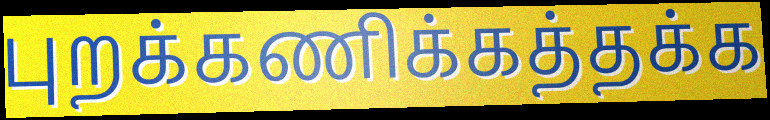
புறக்கணிக்கத்தக்க